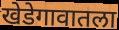
खेडेगावातला